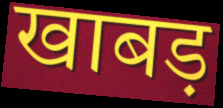
खाबड़